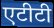
एटीटी